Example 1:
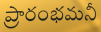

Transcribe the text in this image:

ప్రారంభమనీ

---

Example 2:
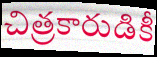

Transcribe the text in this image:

చిత్రకారుడికీ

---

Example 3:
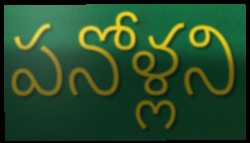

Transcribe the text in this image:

పనోళ్లని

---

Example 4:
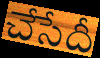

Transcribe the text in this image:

చేసేదీ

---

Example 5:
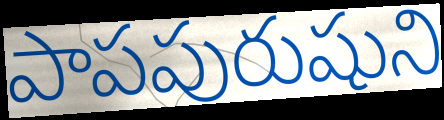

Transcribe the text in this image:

పాపపురుషుని